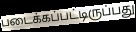
படைக்கப்பட்டிருப்பது